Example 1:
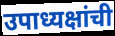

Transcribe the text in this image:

उपाध्यक्षांची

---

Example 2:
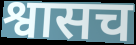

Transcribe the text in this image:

श्वासच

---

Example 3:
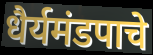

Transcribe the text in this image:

धैर्यमंडपाचे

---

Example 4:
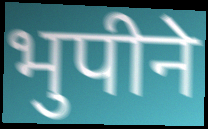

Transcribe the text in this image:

भुपीने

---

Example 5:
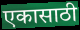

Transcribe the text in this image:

एकासाठी